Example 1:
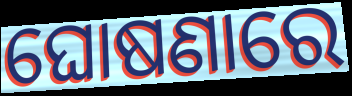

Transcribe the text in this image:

ଘୋଷଣାରେ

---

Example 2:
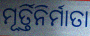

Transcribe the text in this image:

ମୂର୍ତ୍ତିନିର୍ମାତା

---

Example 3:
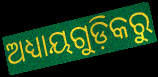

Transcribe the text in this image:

ଅଧ୍ୟାୟଗୁଡ଼ିକରୁ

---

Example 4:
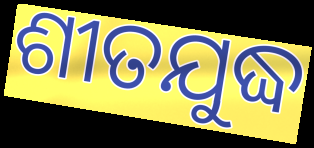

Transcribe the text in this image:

ଶୀତଯୁଦ୍ଧ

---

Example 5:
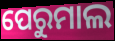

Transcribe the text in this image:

ପେରୁମାଲ